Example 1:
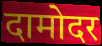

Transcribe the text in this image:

दामोदर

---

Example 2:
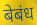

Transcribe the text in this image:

बेबंध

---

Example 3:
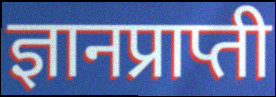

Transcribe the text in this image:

ज्ञानप्राप्ती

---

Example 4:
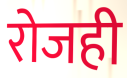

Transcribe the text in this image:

रोजही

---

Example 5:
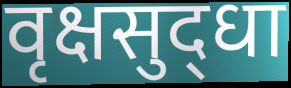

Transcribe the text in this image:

वृक्षसुद्धा